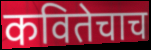
कवितेचाच